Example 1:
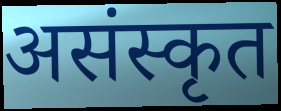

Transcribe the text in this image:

असंस्कृत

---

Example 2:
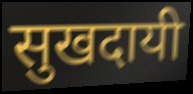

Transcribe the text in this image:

सुखदायी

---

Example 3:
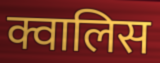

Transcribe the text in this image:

क्वालिस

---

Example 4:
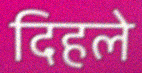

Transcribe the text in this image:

दिहले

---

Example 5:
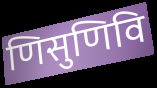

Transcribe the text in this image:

णिसुणिवि